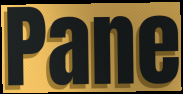
Pane